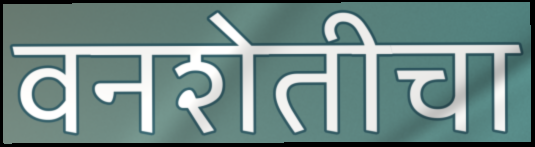
वनशेतीचा